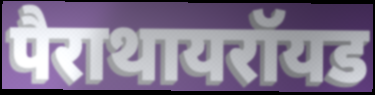
पैराथायरॉयड